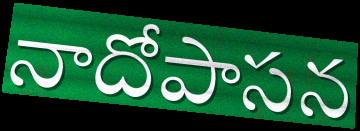
నాదోపాసన